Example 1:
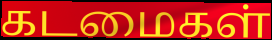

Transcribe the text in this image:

கடமைகள்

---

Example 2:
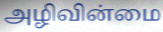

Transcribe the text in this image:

அழிவின்மை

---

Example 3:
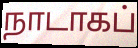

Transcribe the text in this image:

நாடாகப்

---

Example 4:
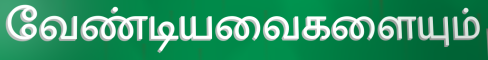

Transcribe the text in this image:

வேண்டியவைகளையும்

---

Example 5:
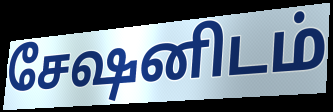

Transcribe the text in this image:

சேஷனிடம்